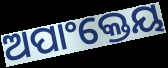
ଅପାଂକ୍ତେୟ